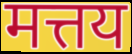
मत्तय